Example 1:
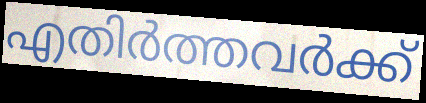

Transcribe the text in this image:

എതിർത്തവർക്ക്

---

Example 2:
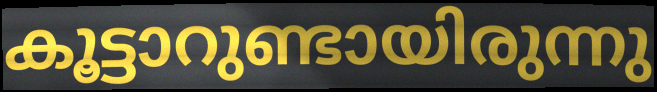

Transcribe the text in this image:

കൂട്ടാറുണ്ടായിരുന്നു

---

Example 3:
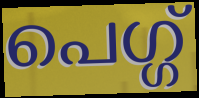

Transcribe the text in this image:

പെഗ്ഗ്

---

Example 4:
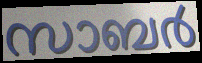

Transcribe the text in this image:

സാബർ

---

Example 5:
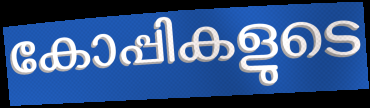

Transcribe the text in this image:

കോപ്പികളുടെ